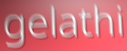
gelathi